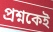
প্রশ্নকেই